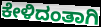
ಕೇಳಿದಂತಾಗಿ